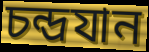
চন্দ্ৰযান